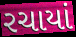
રચાયાં